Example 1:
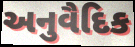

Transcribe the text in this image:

અનુવૈદિક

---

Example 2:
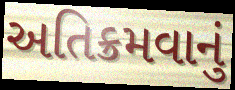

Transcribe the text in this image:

અતિક્રમવાનું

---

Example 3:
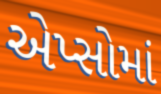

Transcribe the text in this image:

એપ્સોમાં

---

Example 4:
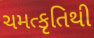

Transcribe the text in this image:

ચમત્કૃતિથી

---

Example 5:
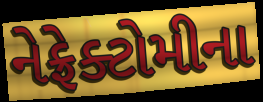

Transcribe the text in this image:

નેફ્રેક્ટોમીના